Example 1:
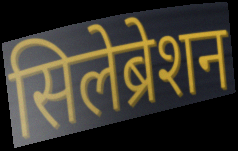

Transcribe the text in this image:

सिलेब्रेशन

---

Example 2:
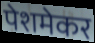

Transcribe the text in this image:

पेशमेकर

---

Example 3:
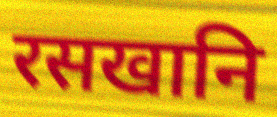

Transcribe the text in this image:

रसखानि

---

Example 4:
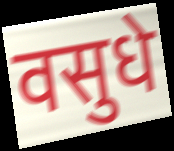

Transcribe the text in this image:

वसुधे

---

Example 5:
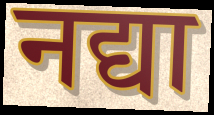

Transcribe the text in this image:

नद्या